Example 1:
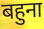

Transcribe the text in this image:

बहुना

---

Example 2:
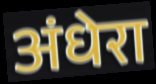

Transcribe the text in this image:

अंधेरा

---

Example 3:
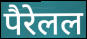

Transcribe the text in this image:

पैरेलल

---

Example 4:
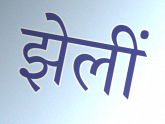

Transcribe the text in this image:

झेलीं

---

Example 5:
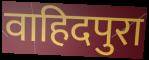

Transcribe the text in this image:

वाहिदपुरा